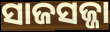
ସାଜସଜ୍ଜା